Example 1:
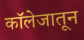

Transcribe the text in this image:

कॉलेजातून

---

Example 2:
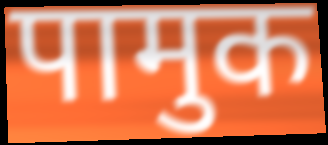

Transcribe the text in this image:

पामुक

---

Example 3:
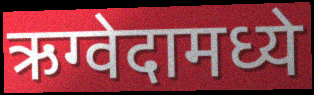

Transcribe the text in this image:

ऋग्वेदामध्ये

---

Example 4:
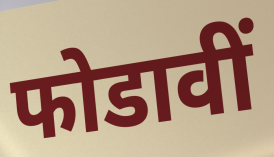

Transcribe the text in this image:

फोडावीं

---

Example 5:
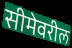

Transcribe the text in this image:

सीमेवरील